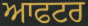
ਆਫਟਰ